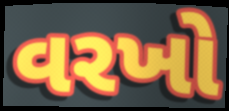
વરખો